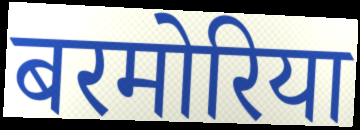
बरमोरिया